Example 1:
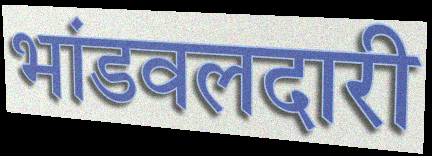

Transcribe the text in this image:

भांडवलदारी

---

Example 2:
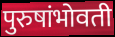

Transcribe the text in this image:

पुरुषांभोवती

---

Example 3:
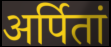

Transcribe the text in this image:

अर्पितां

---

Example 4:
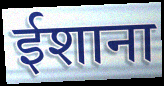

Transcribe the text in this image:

ईशाना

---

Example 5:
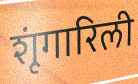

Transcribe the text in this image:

श्रृंगारिली